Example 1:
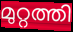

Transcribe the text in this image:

മുറ്റത്തി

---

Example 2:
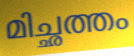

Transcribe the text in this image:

മിച്ഛത്തം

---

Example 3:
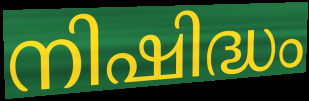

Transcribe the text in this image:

നിഷിദ്ധം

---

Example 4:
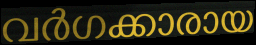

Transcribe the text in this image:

വർഗക്കാരായ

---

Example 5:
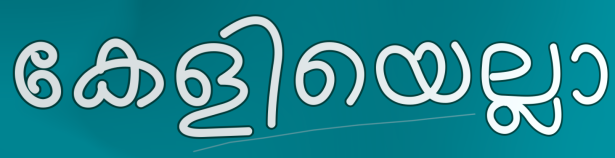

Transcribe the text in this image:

കേളിയെല്ലാ